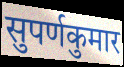
सुपर्णकुमार